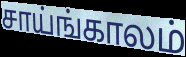
சாய்ங்காலம்